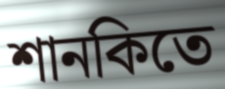
শানকিতে